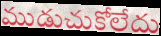
ముడుచుకోలేదు